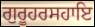
ਗੁਰੂਹਰਸਹਾਇ